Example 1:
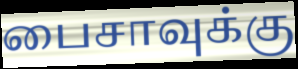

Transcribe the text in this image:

பைசாவுக்கு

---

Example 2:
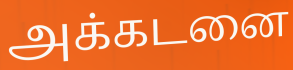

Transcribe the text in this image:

அக்கடனை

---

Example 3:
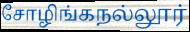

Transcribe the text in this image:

சோழிங்கநல்லூர்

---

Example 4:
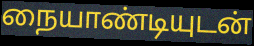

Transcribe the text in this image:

நையாண்டியுடன்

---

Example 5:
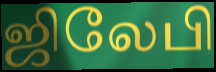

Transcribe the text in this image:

ஜிலேபி